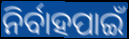
ନିର୍ବାହପାଇଁ